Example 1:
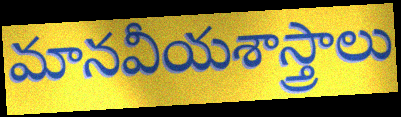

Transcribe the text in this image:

మానవీయశాస్త్రాలు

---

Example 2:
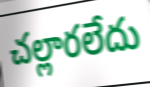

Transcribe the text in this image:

చల్లారలేదు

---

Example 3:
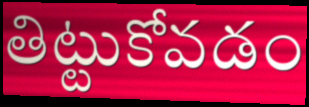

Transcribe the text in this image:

తిట్టుకోవడం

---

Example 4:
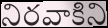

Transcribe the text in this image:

నిరవాకిని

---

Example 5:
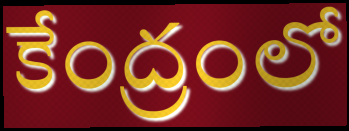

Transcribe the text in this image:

కేంద్రంలో